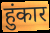
हुंकार